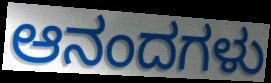
ಆನಂದಗಳು